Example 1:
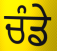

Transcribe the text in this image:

ਚੰਡੇ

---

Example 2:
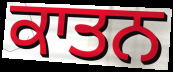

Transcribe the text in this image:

ਕਾਤਨ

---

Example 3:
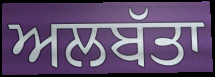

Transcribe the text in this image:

ਅਲਬੱਤਾ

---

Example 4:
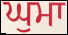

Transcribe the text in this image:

ਘੁਮਾ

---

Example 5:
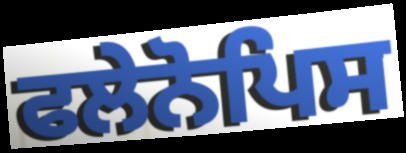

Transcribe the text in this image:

ਫਲੇਨੋਪਿਸ